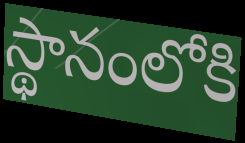
స్థానంలోకి